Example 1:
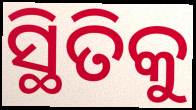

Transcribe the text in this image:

ସ୍ଥିତିକୁ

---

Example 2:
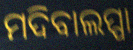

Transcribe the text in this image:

ମଦିବାଲପ୍ପା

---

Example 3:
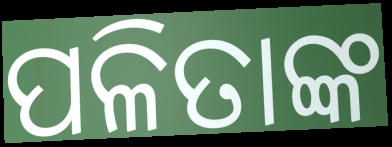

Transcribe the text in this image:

ପଳିତାଙ୍କ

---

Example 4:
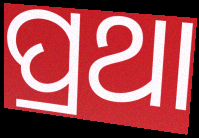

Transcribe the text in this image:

ପ୍ରଥା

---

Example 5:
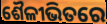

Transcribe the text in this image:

ଶୈଳୀଭିତରେ